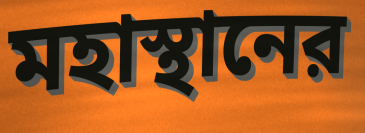
মহাস্থানের